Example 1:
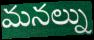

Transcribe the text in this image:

మనల్ను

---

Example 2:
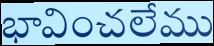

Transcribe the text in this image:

భావించలేము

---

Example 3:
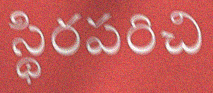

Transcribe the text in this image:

స్థిరపరిచి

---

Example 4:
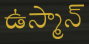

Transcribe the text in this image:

ఉస్మాన్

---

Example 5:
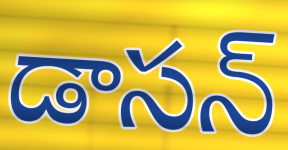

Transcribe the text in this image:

డాసన్